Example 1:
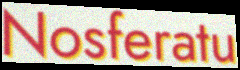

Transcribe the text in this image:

Nosferatu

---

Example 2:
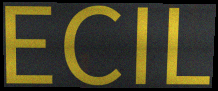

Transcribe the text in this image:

ECIL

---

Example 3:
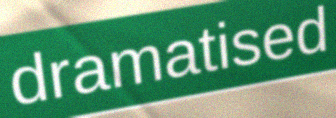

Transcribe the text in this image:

dramatised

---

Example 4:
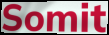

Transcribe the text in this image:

Somit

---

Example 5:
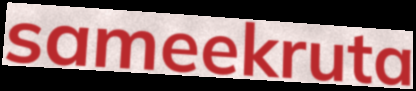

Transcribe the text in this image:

sameekruta